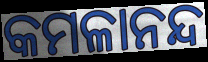
କମଳାନନ୍ଦ